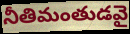
నీతిమంతుడవై